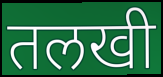
तलखी